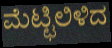
ಮೆಟ್ಟಿಲಿಳಿದ